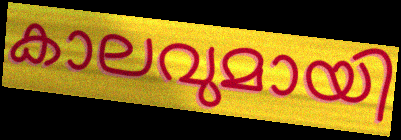
കാലവുമായി